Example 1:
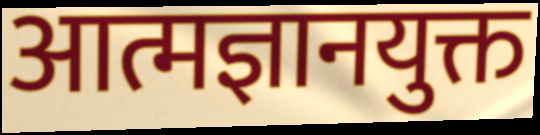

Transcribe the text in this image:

आत्मज्ञानयुक्त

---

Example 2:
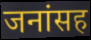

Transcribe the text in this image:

जनांसह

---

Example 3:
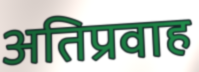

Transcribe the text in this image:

अतिप्रवाह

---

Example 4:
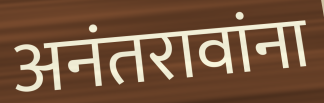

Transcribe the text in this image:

अनंतरावांना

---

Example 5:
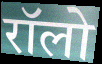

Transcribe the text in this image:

रॉलो